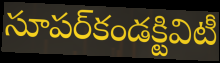
సూపర్‌కండక్టివిటీ